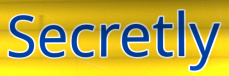
Secretly